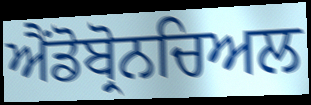
ਐਂਡੋਬ੍ਰੋਨਚਿਅਲ